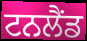
ਟਨਲੈਂਡ